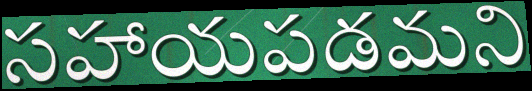
సహాయపడమని